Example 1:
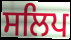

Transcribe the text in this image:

ਸਲਿਪ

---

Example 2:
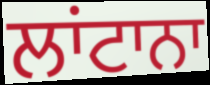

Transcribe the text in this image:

ਲਾਂਟਾਨਾ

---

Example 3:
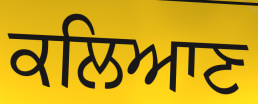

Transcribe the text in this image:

ਕਲਿਆਣ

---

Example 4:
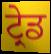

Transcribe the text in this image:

ਟ੍ਰੇਡ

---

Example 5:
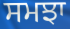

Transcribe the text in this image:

ਸਮਝਾ